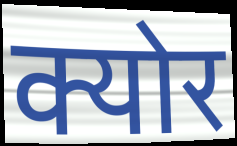
क्योर